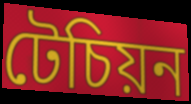
টেচিয়ন